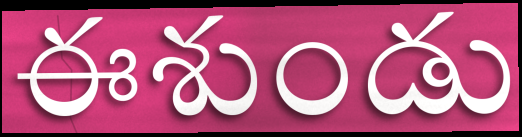
ఈశుండు